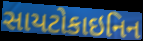
સાયટોકાઇનિન